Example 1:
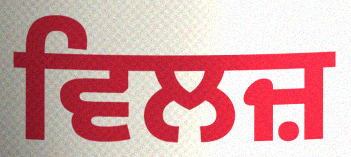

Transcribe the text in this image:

ਵਿਲਜ਼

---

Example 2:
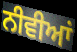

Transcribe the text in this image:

ਨੀਵੀਆਂ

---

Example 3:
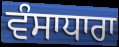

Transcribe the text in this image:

ਵੰਸਾਧਾਰਾ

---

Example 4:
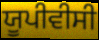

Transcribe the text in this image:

ਯੂਪੀਵੀਸੀ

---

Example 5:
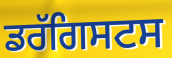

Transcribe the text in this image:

ਡਰੱਗਿਸਟਸ